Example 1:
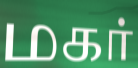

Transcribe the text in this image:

மகர்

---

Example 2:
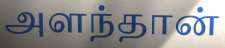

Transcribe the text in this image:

அளந்தான்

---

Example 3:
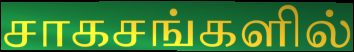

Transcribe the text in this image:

சாகசங்களில்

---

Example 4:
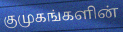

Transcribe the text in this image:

குமுகங்களின்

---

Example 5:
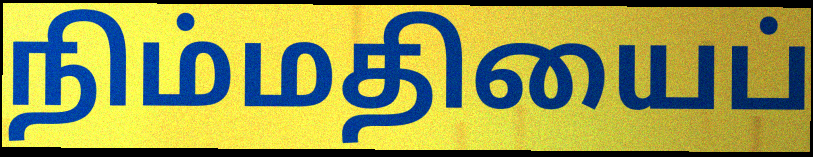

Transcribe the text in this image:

நிம்மதியைப்